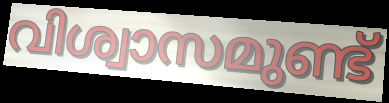
വിശ്വാസമുണ്ട്